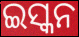
ଇସ୍କନ